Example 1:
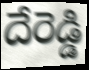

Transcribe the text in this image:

దేరెడ్డి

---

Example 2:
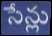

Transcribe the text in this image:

సేన్లు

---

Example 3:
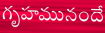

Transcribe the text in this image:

గృహమునందే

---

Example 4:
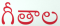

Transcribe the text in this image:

గీతాల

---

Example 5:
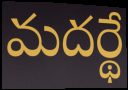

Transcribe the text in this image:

మదర్థే